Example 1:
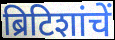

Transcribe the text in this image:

ब्रिटिशांचें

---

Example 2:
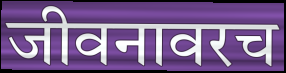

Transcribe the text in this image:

जीवनावरच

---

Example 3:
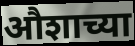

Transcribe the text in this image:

औशाच्या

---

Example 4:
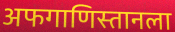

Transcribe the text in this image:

अफगाणिस्तानला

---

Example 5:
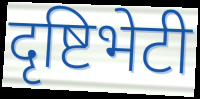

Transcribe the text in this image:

दृष्टिभेटी